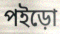
পইড়ো